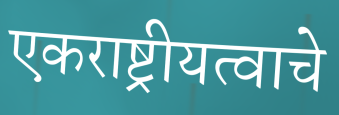
एकराष्ट्रीयत्वाचे